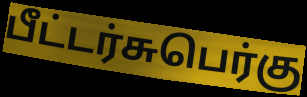
பீட்டர்சுபெர்கு